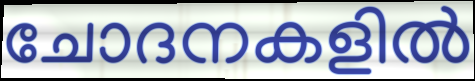
ചോദനകളിൽ